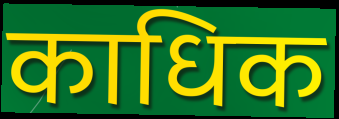
काधिक